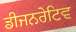
ਡੀਜਨਰੇਟਿਵ